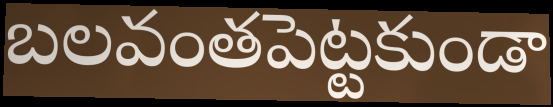
బలవంతపెట్టకుండా